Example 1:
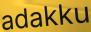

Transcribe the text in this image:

adakku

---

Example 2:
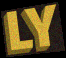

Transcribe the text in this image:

LY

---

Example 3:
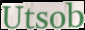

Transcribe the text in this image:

Utsob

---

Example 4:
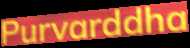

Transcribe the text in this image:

Purvarddha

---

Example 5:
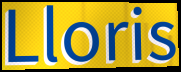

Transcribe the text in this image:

Lloris